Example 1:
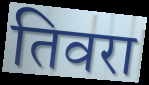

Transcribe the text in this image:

तिवरा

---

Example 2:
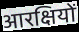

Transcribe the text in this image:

आरक्षियों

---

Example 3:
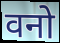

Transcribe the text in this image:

वनो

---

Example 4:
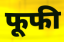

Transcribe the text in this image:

फूफी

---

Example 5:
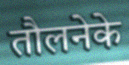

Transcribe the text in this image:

तौलनेके